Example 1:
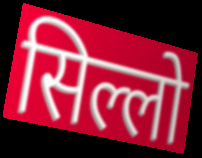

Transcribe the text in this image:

सिल्लो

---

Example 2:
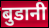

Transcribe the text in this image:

बुडानी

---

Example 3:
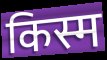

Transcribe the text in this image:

किस्म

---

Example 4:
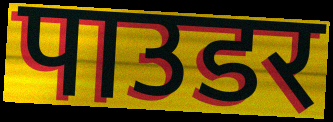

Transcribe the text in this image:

पाउडर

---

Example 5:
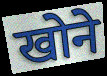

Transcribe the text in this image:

खोने